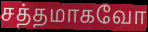
சத்தமாகவோ